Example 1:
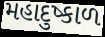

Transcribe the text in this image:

મહાદુષ્કાળ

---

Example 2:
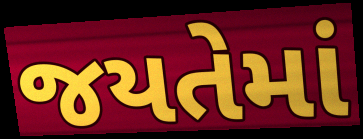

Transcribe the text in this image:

જયતેમાં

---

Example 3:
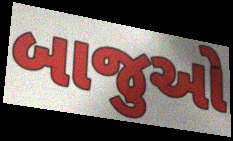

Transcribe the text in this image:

બાજુઓ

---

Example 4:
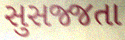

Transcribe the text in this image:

સુસજ્જતા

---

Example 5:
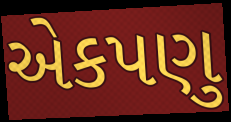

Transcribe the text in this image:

એકપણુ